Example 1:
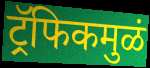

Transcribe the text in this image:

ट्रॅफिकमुळं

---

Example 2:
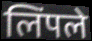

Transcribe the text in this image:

लिंपले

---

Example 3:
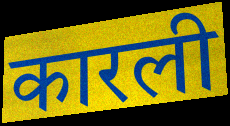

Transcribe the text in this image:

कारली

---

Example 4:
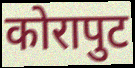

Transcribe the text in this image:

कोरापुट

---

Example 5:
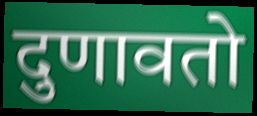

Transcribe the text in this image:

दुणावतो